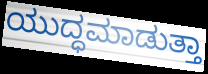
ಯುದ್ಧಮಾಡುತ್ತಾ